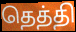
தெத்தி